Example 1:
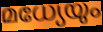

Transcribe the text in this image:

മധ്യേയും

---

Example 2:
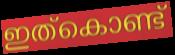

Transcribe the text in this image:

ഇത്കൊണ്ട്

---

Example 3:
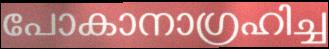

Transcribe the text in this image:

പോകാനാഗ്രഹിച്ച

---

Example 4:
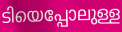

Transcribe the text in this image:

ടിയെപ്പോലുള്ള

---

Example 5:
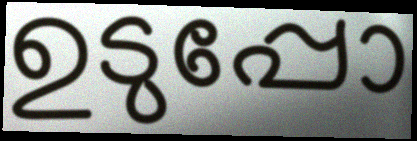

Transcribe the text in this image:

ഉടുപ്പോ